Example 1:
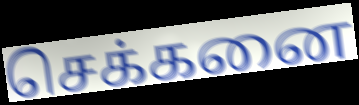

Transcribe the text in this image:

செக்கனை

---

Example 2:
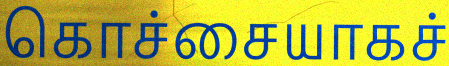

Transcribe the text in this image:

கொச்சையாகச்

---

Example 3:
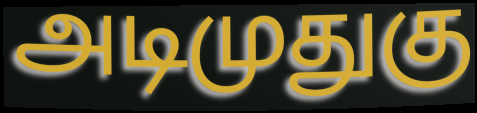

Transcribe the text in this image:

அடிமுதுகு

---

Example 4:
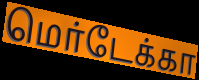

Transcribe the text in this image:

மெர்டேக்கா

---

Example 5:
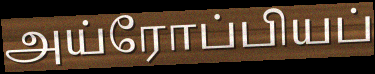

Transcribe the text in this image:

அய்ரோப்பியப்